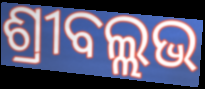
ଶ୍ରୀବଲ୍ଲଭ